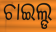
ଚାଇଲ୍ଡ